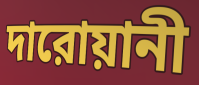
দারোয়ানী